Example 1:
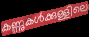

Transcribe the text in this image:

കണ്ണുകൾക്കുള്ളിലെ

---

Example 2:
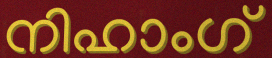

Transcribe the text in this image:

നിഹാംഗ്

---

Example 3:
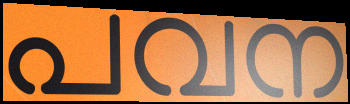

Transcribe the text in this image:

പവന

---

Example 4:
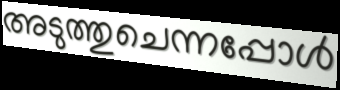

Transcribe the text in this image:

അടുത്തുചെന്നപ്പോൾ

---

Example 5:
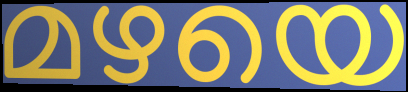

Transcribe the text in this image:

മഴയെ